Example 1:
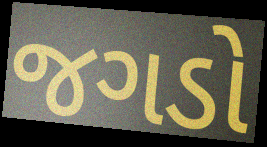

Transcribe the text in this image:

જગડો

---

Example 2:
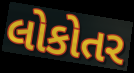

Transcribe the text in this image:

લોકોતર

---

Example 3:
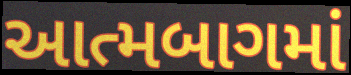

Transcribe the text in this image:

આત્મબાગમાં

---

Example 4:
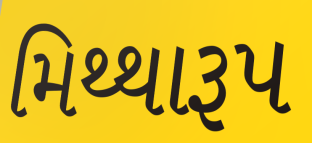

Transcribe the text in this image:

મિથ્થારૂપ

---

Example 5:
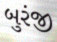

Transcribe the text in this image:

બુરંજી